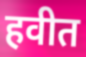
हवीत